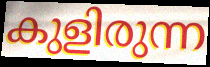
കുളിരുന്ന